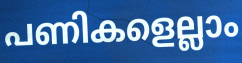
പണികളെല്ലാം